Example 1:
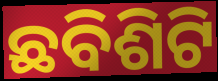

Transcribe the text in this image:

ଛବିଶିଟି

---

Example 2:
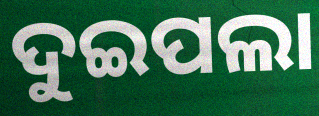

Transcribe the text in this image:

ଦୁଇପଲା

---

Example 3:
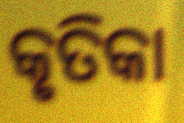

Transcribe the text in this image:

କୃତିକା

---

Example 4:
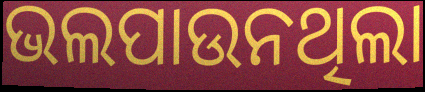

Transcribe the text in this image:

ଭଲପାଉନଥିଲା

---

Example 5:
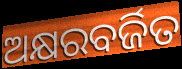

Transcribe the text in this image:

ଅକ୍ଷରବର୍ଜିତ